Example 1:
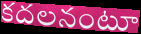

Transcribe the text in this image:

కదలనంటూ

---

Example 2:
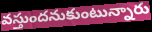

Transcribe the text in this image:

వస్తుందనుకుంటున్నారు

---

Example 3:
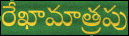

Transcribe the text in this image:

రేఖామాత్రపు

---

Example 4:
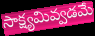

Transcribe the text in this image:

సాక్ష్యమివ్వడమే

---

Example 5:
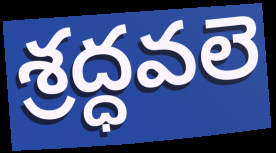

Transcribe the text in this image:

శ్రద్ధవలె